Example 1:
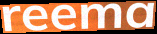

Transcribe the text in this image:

reema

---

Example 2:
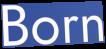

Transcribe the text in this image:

Born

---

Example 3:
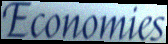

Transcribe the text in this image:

Economies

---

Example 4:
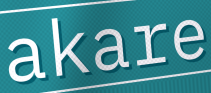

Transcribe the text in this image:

akare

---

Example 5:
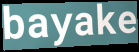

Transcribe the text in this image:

bayake